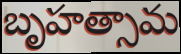
బృహత్సామ